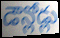
డౌన్లోడ్లు